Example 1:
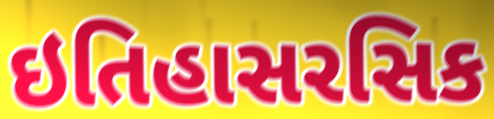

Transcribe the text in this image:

ઇતિહાસરસિક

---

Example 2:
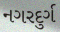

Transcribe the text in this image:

નગરદુર્ગ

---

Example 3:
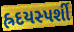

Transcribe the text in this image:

હ્રદયસ્પર્શી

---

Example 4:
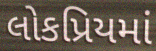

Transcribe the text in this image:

લોકપ્રિયમાં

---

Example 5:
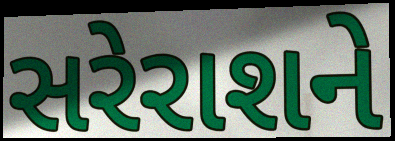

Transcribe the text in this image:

સરેરાશને